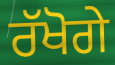
ਰੱਖੋਗੇ